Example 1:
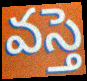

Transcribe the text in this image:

వస్తె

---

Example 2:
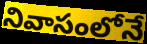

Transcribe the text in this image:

నివాసంలోనే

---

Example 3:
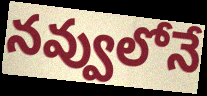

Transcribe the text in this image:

నవ్వులోనే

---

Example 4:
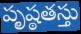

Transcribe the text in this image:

పృష్ఠతస్తు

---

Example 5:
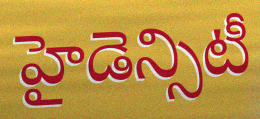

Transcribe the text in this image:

హైడెన్సిటీ